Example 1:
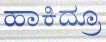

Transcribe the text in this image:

ಹಾಕಿದ್ರೂ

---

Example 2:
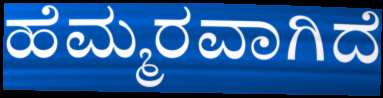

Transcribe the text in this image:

ಹೆಮ್ಮರವಾಗಿದೆ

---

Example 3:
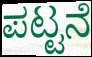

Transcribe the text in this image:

ಪಟ್ಟನೆ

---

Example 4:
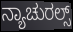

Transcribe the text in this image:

ನ್ಯಾಚುರಲ್ಸ್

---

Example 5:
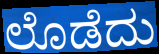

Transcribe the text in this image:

ಲೊಡೆದು